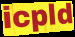
icpld